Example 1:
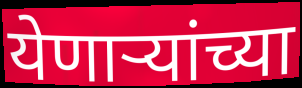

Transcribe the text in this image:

येणाऱ्यांच्या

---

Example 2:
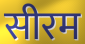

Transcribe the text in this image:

सीरम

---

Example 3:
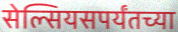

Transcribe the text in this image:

सेल्सियसपर्यंतच्या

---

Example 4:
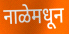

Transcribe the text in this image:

नाळेमधून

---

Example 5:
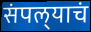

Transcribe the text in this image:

संपल्याचं